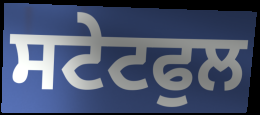
ਸਟੇਟਫੁਲ